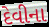
દેવીના